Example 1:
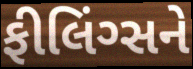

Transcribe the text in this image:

ફીલિંગ્સને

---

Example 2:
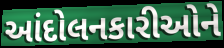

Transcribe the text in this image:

આંદોલનકારીઓને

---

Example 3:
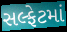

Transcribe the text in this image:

સલ્ફેટમાં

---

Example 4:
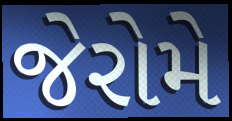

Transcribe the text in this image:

જેરોમે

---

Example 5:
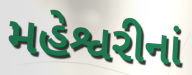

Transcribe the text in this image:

મહેશ્વરીનાં